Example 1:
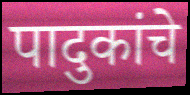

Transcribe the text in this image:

पादुकांचे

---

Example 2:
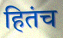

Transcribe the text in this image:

हितंच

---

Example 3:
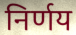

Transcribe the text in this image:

निर्णय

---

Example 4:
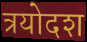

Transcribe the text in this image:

त्रयोदश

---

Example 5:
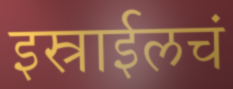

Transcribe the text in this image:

इस्राईलचं